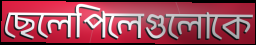
ছেলেপিলেগুলোকে